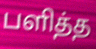
பளித்த